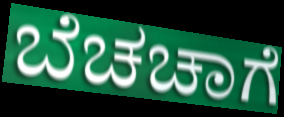
ಬೆಚಚಾಗೆ